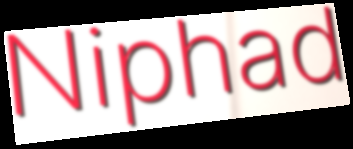
Niphad